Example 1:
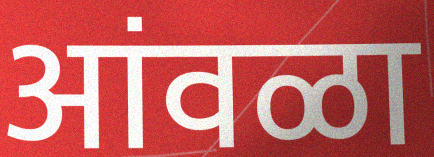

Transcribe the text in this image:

आंवळा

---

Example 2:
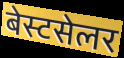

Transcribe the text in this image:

बेस्टसेलर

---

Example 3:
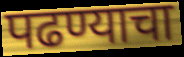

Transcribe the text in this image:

पढण्याचा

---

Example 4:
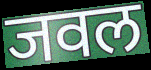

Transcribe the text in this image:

जवल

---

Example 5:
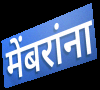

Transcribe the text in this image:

मेंबरांना